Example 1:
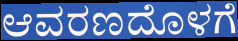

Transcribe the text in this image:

ಆವರಣದೊಳಗೆ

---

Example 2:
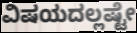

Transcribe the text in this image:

ವಿಷಯದಲ್ಲಷ್ಟೇ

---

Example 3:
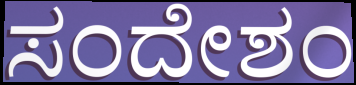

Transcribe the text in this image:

ಸಂದೇಶಂ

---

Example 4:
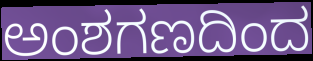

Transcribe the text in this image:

ಅಂಶಗಣದಿಂದ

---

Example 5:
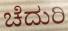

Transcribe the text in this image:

ಚೆದುರಿ